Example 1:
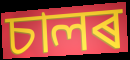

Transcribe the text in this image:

চালৰ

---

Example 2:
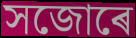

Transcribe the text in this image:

সজোৰে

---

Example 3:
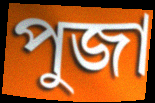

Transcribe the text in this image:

পুজা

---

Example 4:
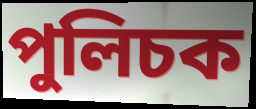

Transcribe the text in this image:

পুলিচক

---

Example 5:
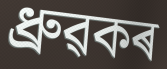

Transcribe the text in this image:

ধ্ৰুৱকৰ